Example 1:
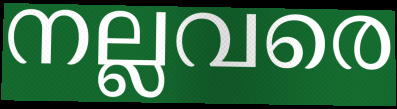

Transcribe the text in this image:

നല്ലവരെ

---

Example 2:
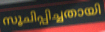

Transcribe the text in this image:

സൂചിപ്പിച്ചതായി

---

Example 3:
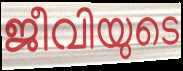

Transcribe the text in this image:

ജീവിയുടെ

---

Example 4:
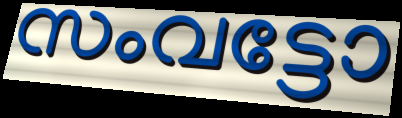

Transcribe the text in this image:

സംവട്ടോ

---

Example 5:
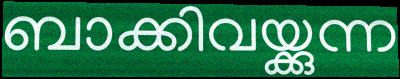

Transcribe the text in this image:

ബാക്കിവയ്ക്കുന്ന